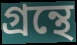
গ্ৰন্থে